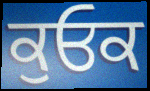
ਕੁਓਕ